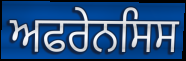
ਅਫਰੇਨਸਿਸ